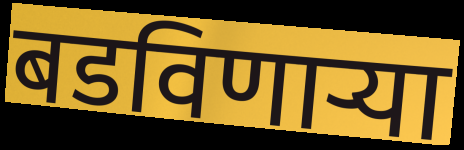
बडविणाऱ्या